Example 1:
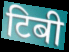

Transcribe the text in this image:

टिबी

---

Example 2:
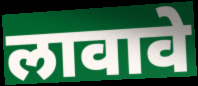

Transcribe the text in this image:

लावावे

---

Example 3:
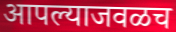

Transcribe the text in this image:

आपल्याजवळच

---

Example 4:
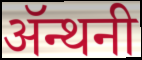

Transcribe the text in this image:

ॲन्थनी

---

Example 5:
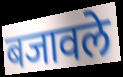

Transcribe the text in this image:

बजावले